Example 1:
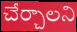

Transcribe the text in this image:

చేర్చాలని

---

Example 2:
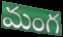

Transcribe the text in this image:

మంగ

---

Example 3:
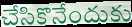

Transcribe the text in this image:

చేసికొనేందుకు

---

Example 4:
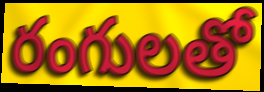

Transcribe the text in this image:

రంగులతో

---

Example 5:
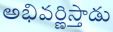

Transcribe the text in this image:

అభివర్ణిస్తాడు